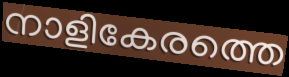
നാളികേരത്തെ